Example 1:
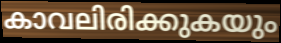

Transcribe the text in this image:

കാവലിരിക്കുകയും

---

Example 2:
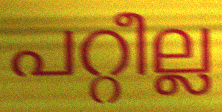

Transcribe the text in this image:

പറ്റീല്ല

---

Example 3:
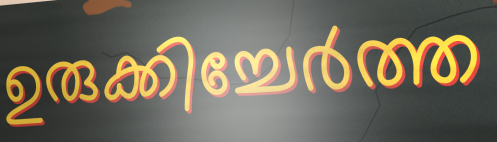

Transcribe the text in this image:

ഉരുക്കിച്ചേർത്ത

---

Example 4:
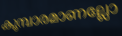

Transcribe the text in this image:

കൂമ്പാരമാണല്ലോ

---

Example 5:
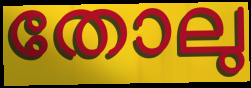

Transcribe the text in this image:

തോലു